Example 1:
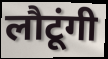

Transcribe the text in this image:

लौटूंगी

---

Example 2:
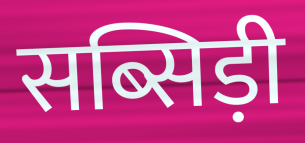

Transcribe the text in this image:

सब्सिड़ी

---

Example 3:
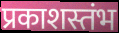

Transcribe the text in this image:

प्रकाशस्तंभ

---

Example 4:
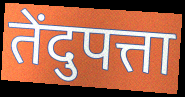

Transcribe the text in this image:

तेंदुपत्ता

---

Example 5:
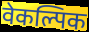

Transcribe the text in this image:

वेकल्पिक